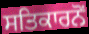
ਸਤਿਕਾਰਨੋਂ